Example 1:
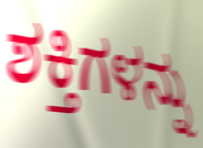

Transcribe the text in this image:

ಶಕ್ತಿಗಳನ್ನು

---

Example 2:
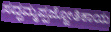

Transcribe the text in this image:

ಸದ್ಧಮ್ಮಪ್ಪಜ್ಜೋತಿಕಾಯ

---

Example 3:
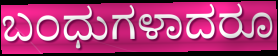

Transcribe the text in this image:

ಬಂಧುಗಳಾದರೂ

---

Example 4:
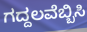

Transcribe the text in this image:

ಗದ್ದಲವೆಬ್ಬಿಸಿ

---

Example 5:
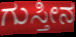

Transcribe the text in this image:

ಗುಸ್ತೀನ